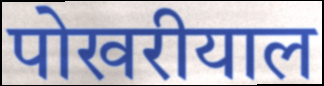
पोखरीयाल